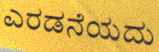
ಎರಡನೆಯದು